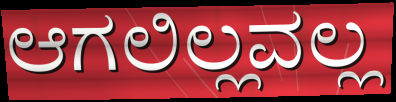
ಆಗಲಿಲ್ಲವಲ್ಲ